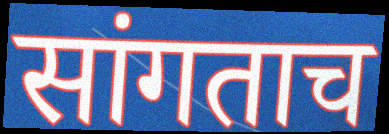
सांगताच